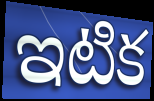
ఇటిక